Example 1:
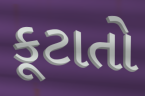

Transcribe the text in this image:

કૂટાતો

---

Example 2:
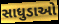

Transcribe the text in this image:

સાધુડાઓ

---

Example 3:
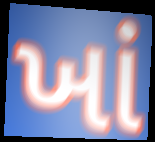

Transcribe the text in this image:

ખાં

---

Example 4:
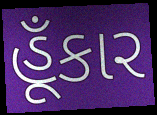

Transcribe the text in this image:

હૂઁકાર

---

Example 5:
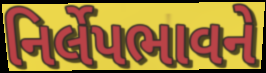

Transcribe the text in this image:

નિર્લેપભાવને